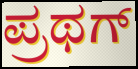
ಪ್ರಥಗ್